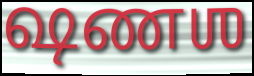
ஷணஶ